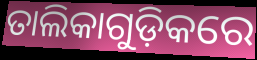
ତାଲିକାଗୁଡ଼ିକରେ